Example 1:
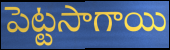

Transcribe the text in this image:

పెట్టసాగాయి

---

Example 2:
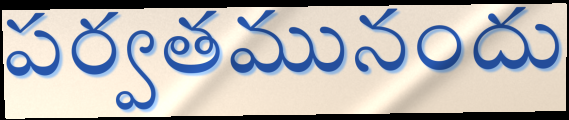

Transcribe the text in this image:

పర్వతమునందు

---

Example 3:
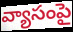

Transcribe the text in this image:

వ్యాసంపై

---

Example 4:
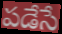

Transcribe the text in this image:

పడేసే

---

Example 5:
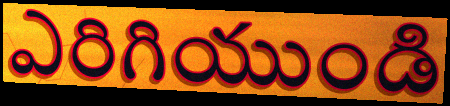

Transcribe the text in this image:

ఎరిగియుండి